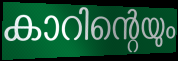
കാറിന്റെയും